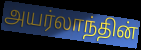
அயர்லாந்தின்